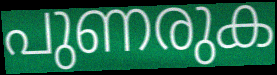
പുണരുക